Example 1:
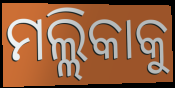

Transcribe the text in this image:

ମଲ୍ଲିକାକୁ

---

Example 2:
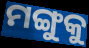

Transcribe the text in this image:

ମଙ୍ଗୁକୁ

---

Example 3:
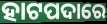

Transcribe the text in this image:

ହାଟପଦାରେ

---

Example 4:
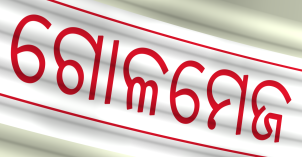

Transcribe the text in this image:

ଗୋଳମେଜ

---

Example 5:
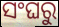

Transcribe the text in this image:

ସଂଘରୁ